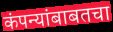
कंपन्यांबाबतचा